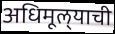
अधिमूल्याची